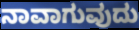
ನಾವಾಗುವುದು